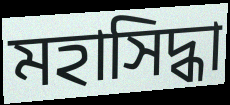
মহাসিদ্ধা